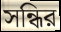
সন্ধির